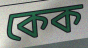
কেক